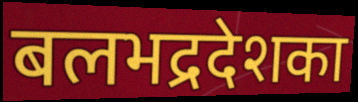
बलभद्रदेशका